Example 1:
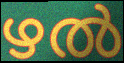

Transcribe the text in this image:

ഴൽ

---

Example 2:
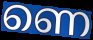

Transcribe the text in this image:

ണെ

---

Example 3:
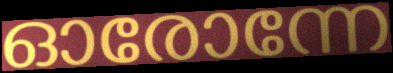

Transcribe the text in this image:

ഓരോന്നേ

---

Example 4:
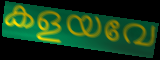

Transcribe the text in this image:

കളയവേ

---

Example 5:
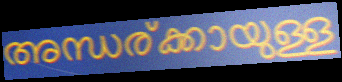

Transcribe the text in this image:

അന്ധര്ക്കായുള്ള